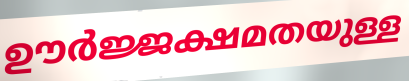
ഊർജ്ജക്ഷമതയുള്ള